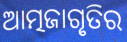
ଆତ୍ମଜାଗୃତିର